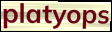
platyops